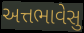
અત્તભાવેસુ